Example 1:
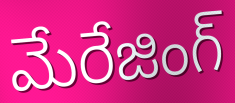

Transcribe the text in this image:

మేరేజింగ్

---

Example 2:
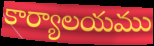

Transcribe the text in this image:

కార్యాలయము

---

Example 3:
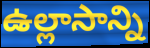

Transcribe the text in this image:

ఉల్లాసాన్ని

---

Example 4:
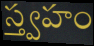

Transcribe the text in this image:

స్త్వహం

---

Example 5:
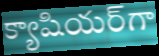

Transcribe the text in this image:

క్యాషియర్‌గా